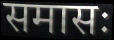
समासः